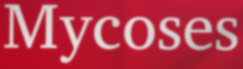
Mycoses